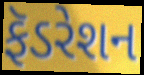
ફૅડરેશન